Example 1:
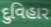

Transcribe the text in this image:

દુવિહાર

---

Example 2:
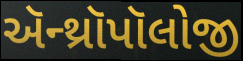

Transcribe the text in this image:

ઍન્થ્રૉપૉલોજી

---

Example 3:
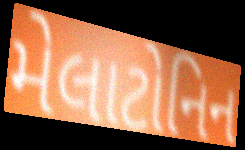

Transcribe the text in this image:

મેલાટોનિન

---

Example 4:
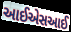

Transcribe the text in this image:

આઈએસઆઈ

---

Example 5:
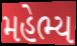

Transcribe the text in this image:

મહેભ્ય